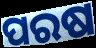
ପରଷ